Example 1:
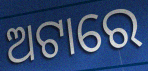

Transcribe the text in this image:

ଅଟାରେ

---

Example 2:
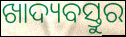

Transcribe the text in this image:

ଖାଦ୍ୟବସ୍ତୁର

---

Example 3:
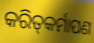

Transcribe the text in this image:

କରିତ୍‌କର୍ମାପଣ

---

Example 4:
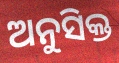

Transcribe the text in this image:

ଅନୁସିକ୍ତ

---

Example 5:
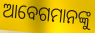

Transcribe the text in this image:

ଆବେଗମାନଙ୍କୁ